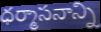
ధర్మాసనాన్ని